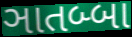
ઞાતબ્બા